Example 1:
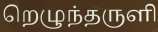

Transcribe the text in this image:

றெழுந்தருளி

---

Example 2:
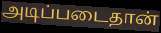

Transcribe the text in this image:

அடிப்படைதான்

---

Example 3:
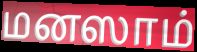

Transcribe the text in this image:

மனஸாம்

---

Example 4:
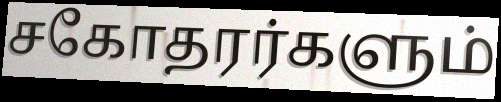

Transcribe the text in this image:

சகோதரர்களும்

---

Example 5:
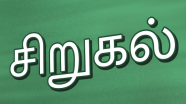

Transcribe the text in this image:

சிறுகல்